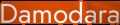
Damodara